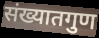
संख्यातगुण